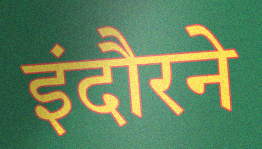
इंदौरने